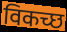
विकच्छ